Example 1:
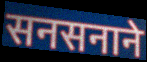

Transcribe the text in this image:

सनसनाने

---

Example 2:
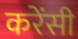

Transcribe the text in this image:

करेंसी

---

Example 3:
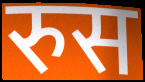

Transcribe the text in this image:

रुस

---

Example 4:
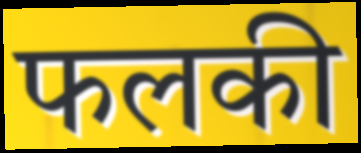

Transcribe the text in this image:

फलकी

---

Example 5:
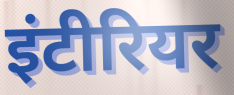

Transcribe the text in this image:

इंटीरियर